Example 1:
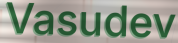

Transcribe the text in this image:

Vasudev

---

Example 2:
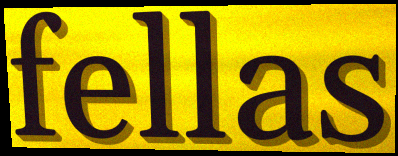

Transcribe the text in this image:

fellas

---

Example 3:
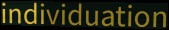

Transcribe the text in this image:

individuation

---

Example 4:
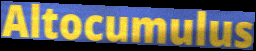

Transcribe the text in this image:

Altocumulus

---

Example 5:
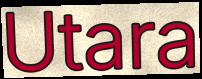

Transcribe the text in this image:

Utara